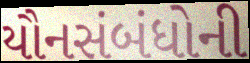
યૌનસંબંધોની